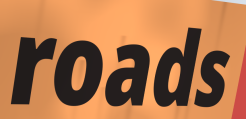
roads